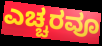
ಎಚ್ಚರವೂ